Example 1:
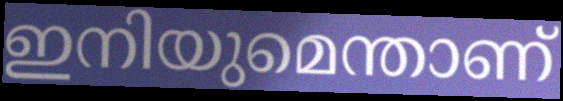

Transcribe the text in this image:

ഇനിയുമെന്താണ്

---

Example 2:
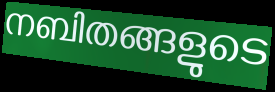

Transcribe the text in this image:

നബിതങ്ങളുടെ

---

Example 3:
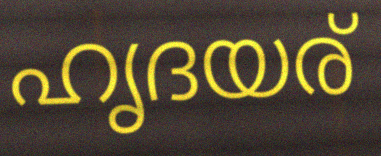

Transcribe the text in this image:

ഹൃദയര്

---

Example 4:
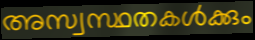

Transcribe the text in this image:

അസ്വസ്ഥതകൾക്കും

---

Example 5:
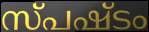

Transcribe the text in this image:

സ്പഷ്ടം